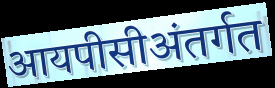
आयपीसीअंतर्गत